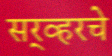
सर्व्हरचे